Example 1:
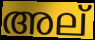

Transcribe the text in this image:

അല്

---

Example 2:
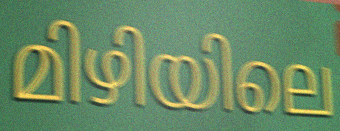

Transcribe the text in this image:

മിഴിയിലെ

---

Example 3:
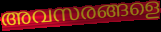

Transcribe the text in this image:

അവസരങ്ങളെ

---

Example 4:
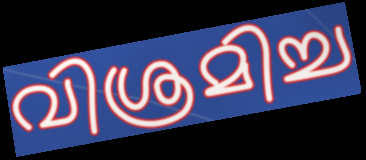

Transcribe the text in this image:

വിശ്രമിച്ച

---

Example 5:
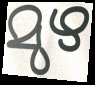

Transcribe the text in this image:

മുഴ